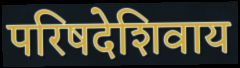
परिषदेशिवाय